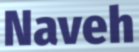
Naveh